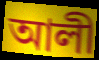
আলী